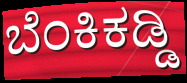
ಬೆಂಕಿಕಡ್ಡಿ